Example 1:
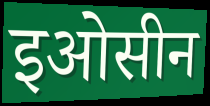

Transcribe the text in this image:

इओसीन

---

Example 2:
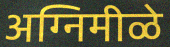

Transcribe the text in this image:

अग्निमीळे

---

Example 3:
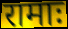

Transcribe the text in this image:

रामाः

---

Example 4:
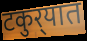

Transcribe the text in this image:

टकुर्‍यात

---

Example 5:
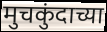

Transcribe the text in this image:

मुचकुंदाच्या